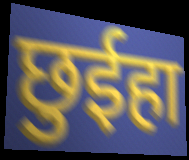
छुईहा